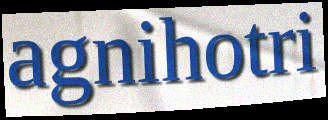
agnihotri